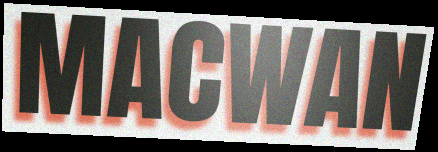
MACWAN